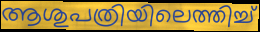
ആശുപത്രിയിലെത്തിച്ച്